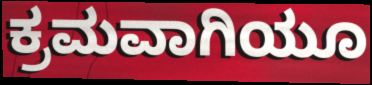
ಕ್ರಮವಾಗಿಯೂ